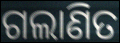
ଗଲାଣିତ